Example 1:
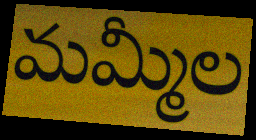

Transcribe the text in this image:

మమ్మీల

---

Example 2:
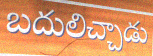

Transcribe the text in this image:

బదులిచ్చాడు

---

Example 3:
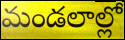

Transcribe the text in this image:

మండలాల్లో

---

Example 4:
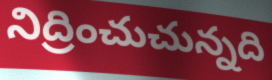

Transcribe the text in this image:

నిద్రించుచున్నది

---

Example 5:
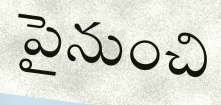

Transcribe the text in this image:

పైనుంచి